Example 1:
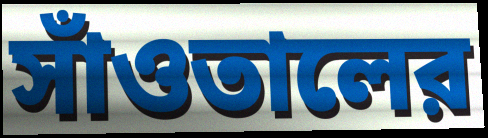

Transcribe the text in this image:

সাঁওতালের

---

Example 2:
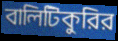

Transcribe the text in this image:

বালিটিকুরির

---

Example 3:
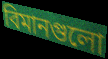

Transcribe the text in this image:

বিমানগুলো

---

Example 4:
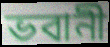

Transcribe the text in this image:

ভবানী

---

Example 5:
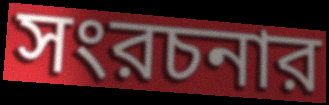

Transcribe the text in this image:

সংরচনার